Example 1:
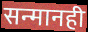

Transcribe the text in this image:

सन्मानही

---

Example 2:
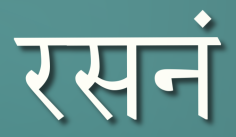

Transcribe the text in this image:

रसनं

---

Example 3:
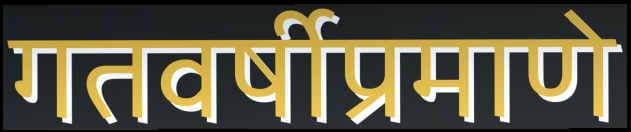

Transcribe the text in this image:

गतवर्षीप्रमाणे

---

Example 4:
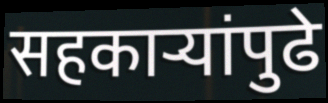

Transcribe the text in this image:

सहकाऱ्यांपुढे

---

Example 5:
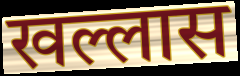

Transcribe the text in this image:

खल्लास